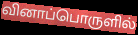
வினாப்பொருளில்